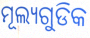
ମୂଲ୍ୟଗୁଡିକ